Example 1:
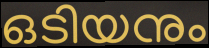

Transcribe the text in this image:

ഒടിയനും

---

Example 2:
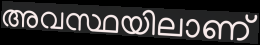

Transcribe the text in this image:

അവസ്ഥയിലാണ്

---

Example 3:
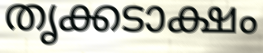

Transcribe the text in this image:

തൃക്കടാക്ഷം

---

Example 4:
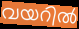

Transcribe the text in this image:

വയറിൽ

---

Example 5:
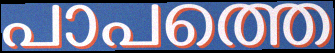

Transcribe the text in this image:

പാപത്തെ